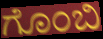
ಗೊಂಬಿ